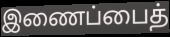
இணைப்பைத்